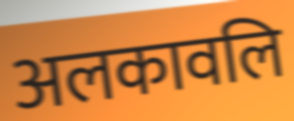
अलकावलि